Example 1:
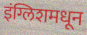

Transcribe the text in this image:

इंग्लिशमधून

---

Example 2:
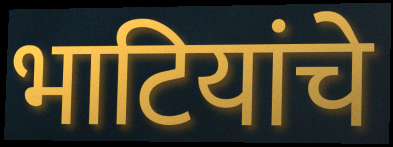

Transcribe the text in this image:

भाटियांचे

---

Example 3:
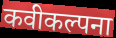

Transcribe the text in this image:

कवीकल्पना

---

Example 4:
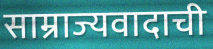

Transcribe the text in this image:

साम्राज्यवादाची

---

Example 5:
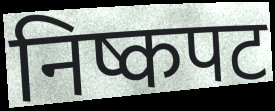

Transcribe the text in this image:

निष्कपट